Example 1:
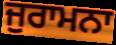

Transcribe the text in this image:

ਜੁਰਾਮਨਾ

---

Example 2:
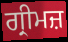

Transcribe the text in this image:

ਗ੍ਰੀਮਜ਼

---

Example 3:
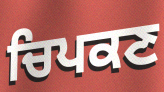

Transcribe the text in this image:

ਚਿਪਕਣ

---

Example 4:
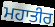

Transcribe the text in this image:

ਮਹਾਤੀਰ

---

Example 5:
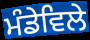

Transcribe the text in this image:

ਮੰਡੇਵਿਲੇ